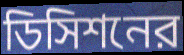
ডিসিশনের